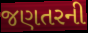
જણતરની